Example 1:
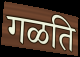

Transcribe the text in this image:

गळति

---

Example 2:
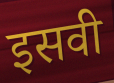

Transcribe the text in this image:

इसवी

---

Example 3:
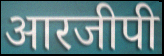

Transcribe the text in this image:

आरजीपी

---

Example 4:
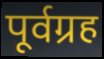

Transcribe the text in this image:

पूर्वग्रह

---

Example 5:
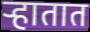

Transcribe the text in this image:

ऱ्हातात